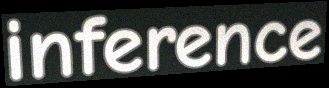
inference